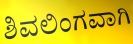
ಶಿವಲಿಂಗವಾಗಿ